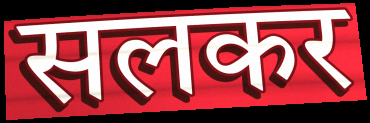
सलकर